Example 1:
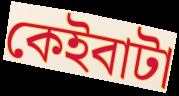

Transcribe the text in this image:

কেইবাটা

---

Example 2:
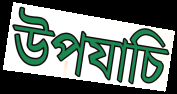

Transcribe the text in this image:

উপযাচি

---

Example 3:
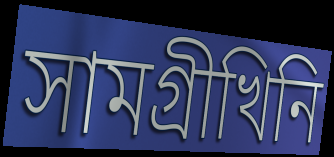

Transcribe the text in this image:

সামগ্ৰীখিনি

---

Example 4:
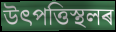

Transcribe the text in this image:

উৎপত্তিস্থলৰ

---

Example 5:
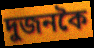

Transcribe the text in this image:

দুজনকৈ